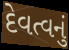
દેવત્વનું